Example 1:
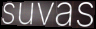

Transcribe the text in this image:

suvas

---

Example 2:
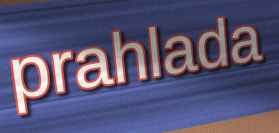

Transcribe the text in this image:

prahlada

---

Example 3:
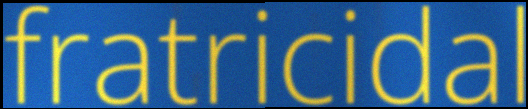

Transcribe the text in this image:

fratricidal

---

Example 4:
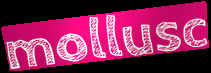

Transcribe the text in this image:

mollusc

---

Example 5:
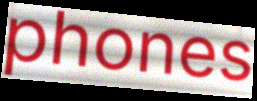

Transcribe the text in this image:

phones